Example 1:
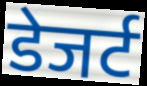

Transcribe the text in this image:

डेजर्ट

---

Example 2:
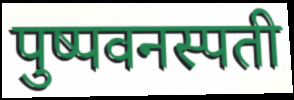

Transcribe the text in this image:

पुष्पवनस्पती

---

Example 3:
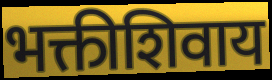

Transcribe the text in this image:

भक्तीशिवाय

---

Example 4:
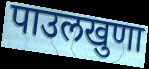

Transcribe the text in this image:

पाउलखुणा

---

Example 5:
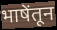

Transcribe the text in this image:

भाषेंतून